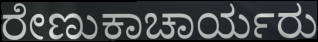
ರೇಣುಕಾಚಾರ್ಯರು